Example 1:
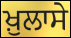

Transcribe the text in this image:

ਖ਼ੁਲਾਸੇ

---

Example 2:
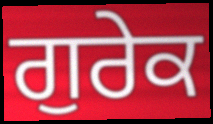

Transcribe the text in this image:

ਗੁਰੇਕ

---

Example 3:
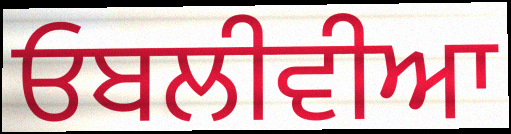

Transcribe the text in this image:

ਓਬਲੀਵੀਆ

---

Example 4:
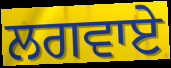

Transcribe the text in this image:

ਲਗਵਾਏ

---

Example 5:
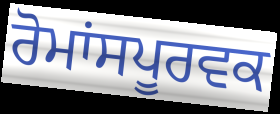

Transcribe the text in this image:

ਰੋਮਾਂਸਪੂਰਵਕ